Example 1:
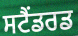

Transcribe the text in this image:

ਸਟੈਂਡਰਡ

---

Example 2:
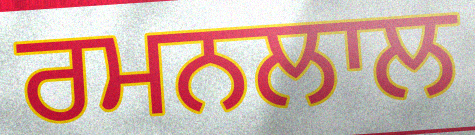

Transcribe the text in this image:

ਰਮਨਲਾਲ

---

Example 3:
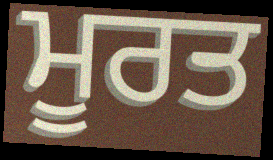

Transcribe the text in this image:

ਮੂਰਤ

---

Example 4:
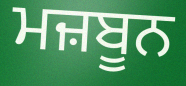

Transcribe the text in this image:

ਮਜ਼ਬੂਨ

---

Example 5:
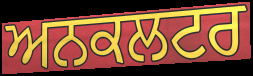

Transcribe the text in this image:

ਅਨਕਲਟਰ